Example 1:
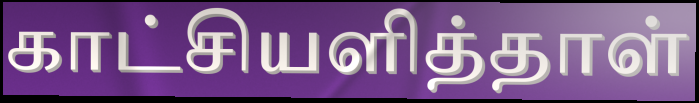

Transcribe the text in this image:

காட்சியளித்தாள்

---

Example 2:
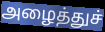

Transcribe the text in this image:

அழைத்துச்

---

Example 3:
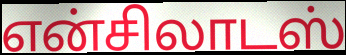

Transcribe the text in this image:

என்சிலாடஸ்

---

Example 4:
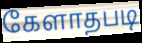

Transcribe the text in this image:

கேளாதபடி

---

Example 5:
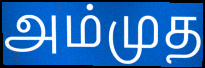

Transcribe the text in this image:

அம்முத